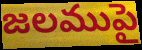
జలముపై